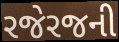
રજેરજની